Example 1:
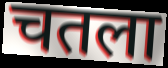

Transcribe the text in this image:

चतला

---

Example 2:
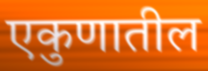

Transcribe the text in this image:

एकुणातील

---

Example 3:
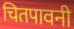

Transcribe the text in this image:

चितपावनी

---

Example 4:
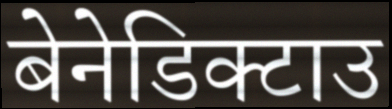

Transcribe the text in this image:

बेनेडिक्टाउ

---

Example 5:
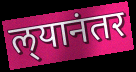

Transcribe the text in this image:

ल्यानंतर